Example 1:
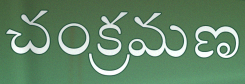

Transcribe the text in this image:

చంక్రమణ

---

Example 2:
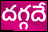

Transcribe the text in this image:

దగ్గదే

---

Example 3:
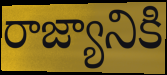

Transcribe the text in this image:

రాజ్యానికి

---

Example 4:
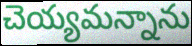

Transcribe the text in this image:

చెయ్యమన్నాను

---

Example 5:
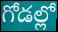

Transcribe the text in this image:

గోడల్లో